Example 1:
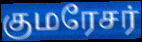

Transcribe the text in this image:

குமரேசர்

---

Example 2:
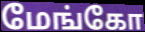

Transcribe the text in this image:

மேங்கோ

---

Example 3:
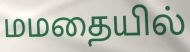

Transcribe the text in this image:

மமதையில்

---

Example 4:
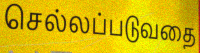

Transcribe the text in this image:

செல்லப்படுவதை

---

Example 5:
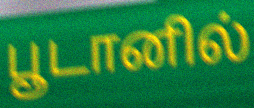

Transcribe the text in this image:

பூடானில்